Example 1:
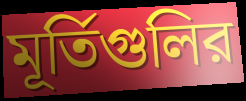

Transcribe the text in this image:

মূর্তিগুলির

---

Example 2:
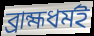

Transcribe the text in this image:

ব্রাহ্মধর্মই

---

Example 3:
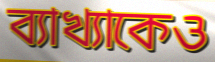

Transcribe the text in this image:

ব্যাখ্যাকেও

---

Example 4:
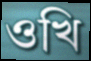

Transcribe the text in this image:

ওখি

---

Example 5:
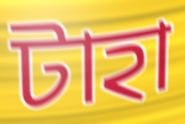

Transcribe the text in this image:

টাহা